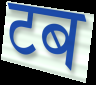
टब